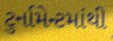
ટુર્નામેન્ટમાંથી